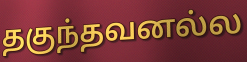
தகுந்தவனல்ல